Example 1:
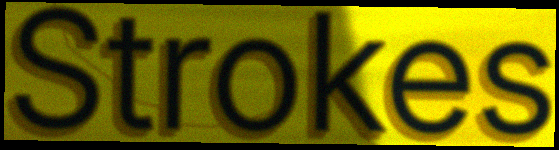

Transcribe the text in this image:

Strokes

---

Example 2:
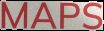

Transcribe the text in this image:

MAPS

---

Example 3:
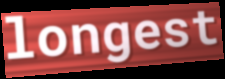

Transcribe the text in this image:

longest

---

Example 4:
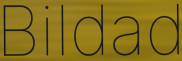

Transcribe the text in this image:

Bildad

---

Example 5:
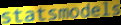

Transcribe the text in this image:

statsmodels